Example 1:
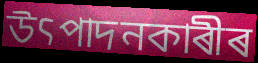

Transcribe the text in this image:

উৎপাদনকাৰীৰ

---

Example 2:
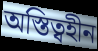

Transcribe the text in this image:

অস্তিত্বহীন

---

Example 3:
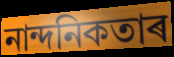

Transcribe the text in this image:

নান্দনিকতাৰ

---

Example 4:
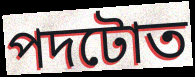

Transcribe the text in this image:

পদটোত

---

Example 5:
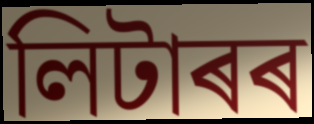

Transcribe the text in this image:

লিটাৰৰ